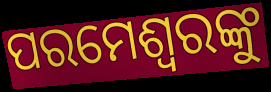
ପରମେଶ୍ୱରଙ୍କୁ